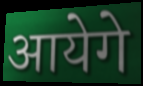
आयेगे